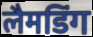
लैमडिंग